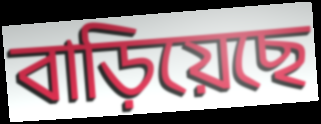
বাড়িয়েছে